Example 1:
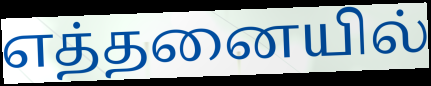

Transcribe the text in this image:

எத்தனையில்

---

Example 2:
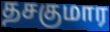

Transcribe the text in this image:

தசகுமார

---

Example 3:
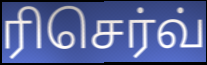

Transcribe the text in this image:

ரிசெர்வ்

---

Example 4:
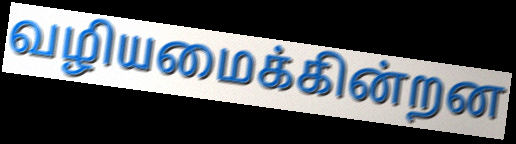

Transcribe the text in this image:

வழியமைக்கின்றன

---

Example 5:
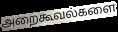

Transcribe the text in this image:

அறைகூவல்களை